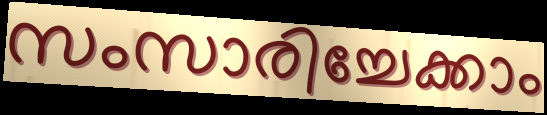
സംസാരിച്ചേക്കാം